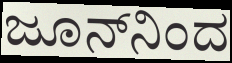
ಜೂನ್‌ನಿಂದ